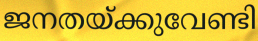
ജനതയ്ക്കുവേണ്ടി